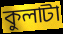
কুলাটা